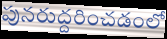
పునరుద్దరించడంలో